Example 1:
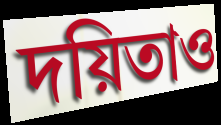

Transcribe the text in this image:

দয়িতাও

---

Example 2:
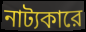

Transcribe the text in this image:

নাট্যকারে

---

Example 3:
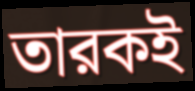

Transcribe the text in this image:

তারকই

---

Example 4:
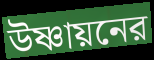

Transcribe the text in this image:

উষ্ণায়নের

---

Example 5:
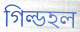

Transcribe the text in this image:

গিল্ডহল